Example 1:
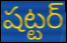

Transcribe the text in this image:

షట్టర్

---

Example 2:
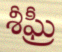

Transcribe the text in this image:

శీఘ్రీ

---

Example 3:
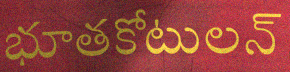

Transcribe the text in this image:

భూతకోటులన్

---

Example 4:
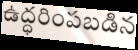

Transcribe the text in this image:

ఉద్ధరింపబడిన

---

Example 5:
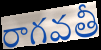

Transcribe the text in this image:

రాగవతీ